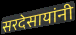
सरदेसायांनी